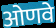
ओणवे